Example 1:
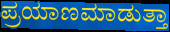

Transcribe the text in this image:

ಪ್ರಯಾಣಮಾಡುತ್ತಾ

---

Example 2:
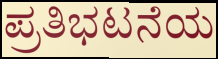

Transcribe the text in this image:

ಪ್ರತಿಭಟನೆಯ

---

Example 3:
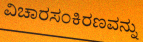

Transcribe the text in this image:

ವಿಚಾರಸಂಕಿರಣವನ್ನು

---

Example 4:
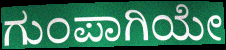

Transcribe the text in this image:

ಗುಂಪಾಗಿಯೇ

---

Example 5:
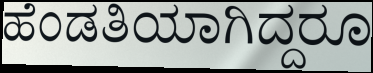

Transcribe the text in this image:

ಹೆಂಡತಿಯಾಗಿದ್ದರೂ